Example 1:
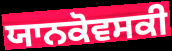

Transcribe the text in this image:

ਯਾਨਕੋਵਸਕੀ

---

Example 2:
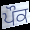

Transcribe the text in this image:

ਪੌਕ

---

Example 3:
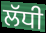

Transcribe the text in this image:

ਲੱਧੀ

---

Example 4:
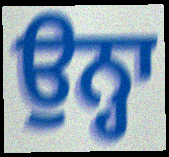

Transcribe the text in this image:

ਉਨ੍ਹਾ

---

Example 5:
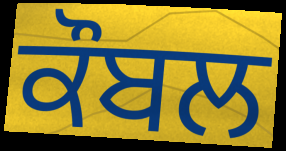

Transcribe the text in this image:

ਕੌਬਲ